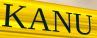
KANU